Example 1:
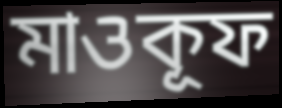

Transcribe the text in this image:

মাওকূফ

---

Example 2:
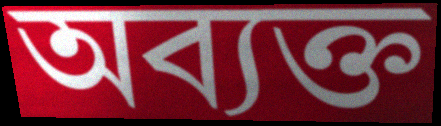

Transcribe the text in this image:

অব্যক্ত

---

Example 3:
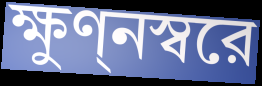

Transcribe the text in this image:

ক্ষুণ্নস্বরে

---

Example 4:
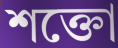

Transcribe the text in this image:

শক্তো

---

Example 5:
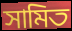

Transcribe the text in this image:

সামিত